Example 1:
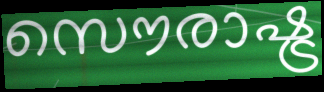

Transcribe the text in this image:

സൌരാഷ്ട്ര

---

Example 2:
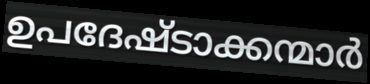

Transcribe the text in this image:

ഉപദേഷ്ടാക്കന്മാർ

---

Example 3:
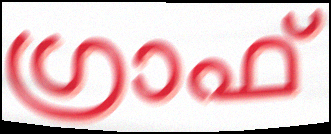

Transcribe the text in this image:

ഗ്രാഫ്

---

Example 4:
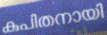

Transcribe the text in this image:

കുപിതനായി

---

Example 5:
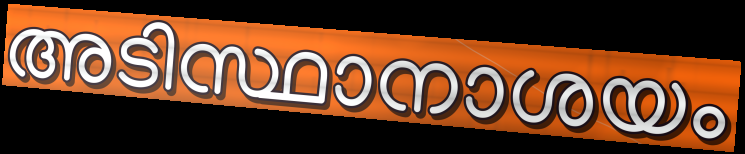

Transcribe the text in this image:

അടിസ്ഥാനാശയം